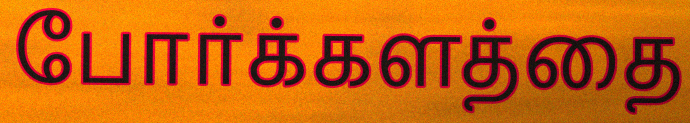
போர்க்களத்தை